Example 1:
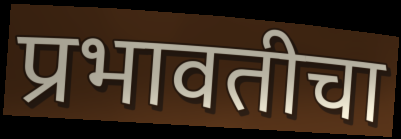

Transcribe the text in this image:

प्रभावतीचा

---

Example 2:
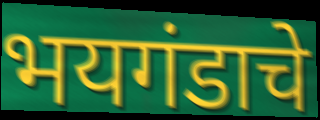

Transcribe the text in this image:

भयगंडाचे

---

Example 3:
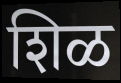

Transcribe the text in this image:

शिळ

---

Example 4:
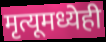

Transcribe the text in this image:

मृत्यूमध्येही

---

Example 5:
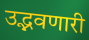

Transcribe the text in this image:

उद्भवणारी